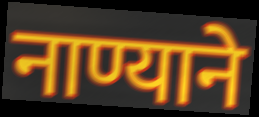
नाण्याने